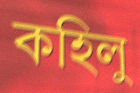
কহিলু